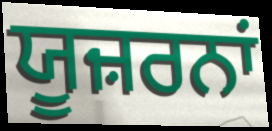
ਯੂਜ਼ਰਨਾਂ